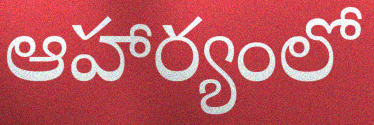
ఆహార్యంలో